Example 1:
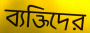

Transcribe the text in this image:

ব্যক্তিদের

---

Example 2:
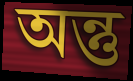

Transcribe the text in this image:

অন্তু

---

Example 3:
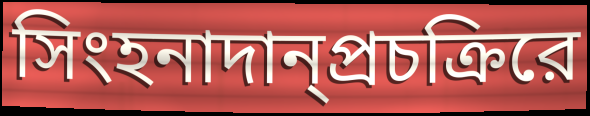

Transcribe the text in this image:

সিংহনাদান্প্রচক্রিরে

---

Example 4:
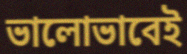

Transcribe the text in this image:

ভালোভাবেই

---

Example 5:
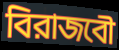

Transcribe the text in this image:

বিরাজবৌ